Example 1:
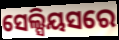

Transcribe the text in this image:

ସେଲ୍ସିୟସରେ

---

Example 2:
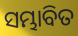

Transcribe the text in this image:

ସମ୍ଭାବିତ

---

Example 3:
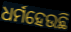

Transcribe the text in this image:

ଧର୍ମହେଉଛି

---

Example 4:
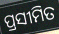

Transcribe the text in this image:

ପ୍ରସୀମିତ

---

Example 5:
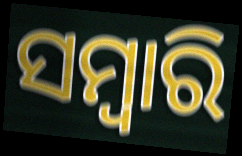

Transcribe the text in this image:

ସମ୍ବାରି